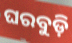
ଘରବୁଡ଼ି